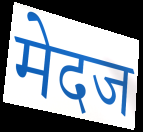
मेदज